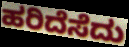
ಹರಿದೆಸೆದು